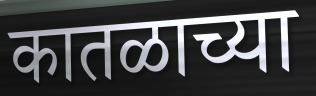
कातळाच्या